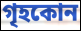
গৃহকোন